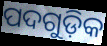
ପଦଗୁଡ଼ିକ